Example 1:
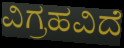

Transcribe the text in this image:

ವಿಗ್ರಹವಿದೆ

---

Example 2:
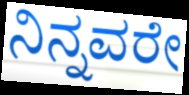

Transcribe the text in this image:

ನಿನ್ನವರೇ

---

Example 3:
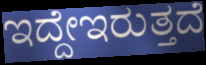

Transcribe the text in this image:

ಇದ್ದೇಇರುತ್ತದೆ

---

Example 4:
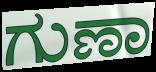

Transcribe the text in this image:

ಗುಣಾ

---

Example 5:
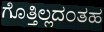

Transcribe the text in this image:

ಗೊತ್ತಿಲ್ಲದಂತಹ